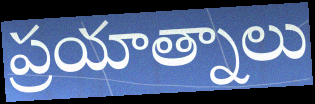
ప్రయాత్నాలు